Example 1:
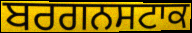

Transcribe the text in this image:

ਬਰਗਨਸਟਾਕ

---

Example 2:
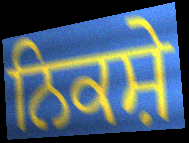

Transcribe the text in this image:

ਨਿਕਸ਼ੇ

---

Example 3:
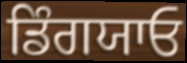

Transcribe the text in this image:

ਡਿੰਗਯਾਓ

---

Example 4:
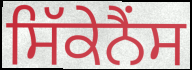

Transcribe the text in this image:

ਸਿੱਕੇਨੈਂਸ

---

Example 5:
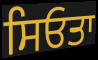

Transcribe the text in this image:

ਸਿਓਤਾ